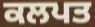
ਕਲਪਤ